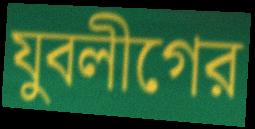
যুবলীগের